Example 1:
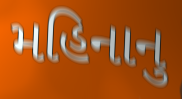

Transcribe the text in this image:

મહિનાનુ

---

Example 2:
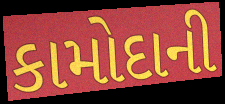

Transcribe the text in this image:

કામોદાની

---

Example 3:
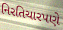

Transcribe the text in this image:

નિરતિચારપણે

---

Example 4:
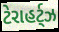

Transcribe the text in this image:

ટેરાહર્ટ્ઝ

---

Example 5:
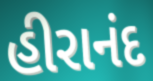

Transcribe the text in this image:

હીરાનંદ